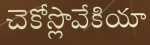
చెకోస్లొవేకియా